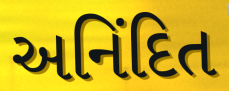
અનિંદિત